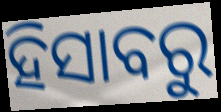
ହିସାବରୁ